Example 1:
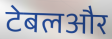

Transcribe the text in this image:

टेबलऔर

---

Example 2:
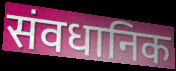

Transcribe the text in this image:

संवधानिक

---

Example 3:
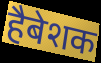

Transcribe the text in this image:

हैबेशक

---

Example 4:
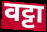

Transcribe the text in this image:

वट्टा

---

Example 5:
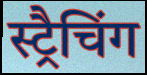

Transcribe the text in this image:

स्ट्रैचिंग